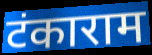
टंकाराम